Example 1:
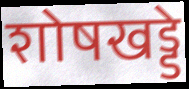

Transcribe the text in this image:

शोषखड्डे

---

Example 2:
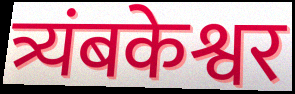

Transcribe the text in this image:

त्र्यंबकेश्वर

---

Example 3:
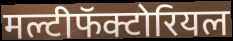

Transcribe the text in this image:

मल्टीफॅक्टोरियल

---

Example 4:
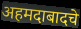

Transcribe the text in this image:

अहमदाबादचे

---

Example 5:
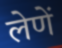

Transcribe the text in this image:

लेणें